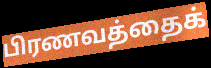
பிரணவத்தைக்